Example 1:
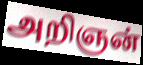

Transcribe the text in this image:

அறிஞன்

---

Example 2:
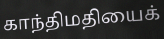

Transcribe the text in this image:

காந்திமதியைக்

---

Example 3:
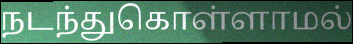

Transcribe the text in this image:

நடந்துகொள்ளாமல்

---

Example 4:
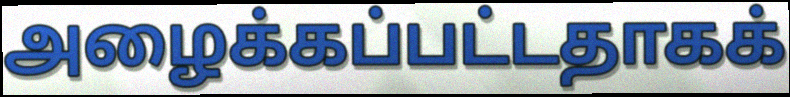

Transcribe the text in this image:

அழைக்கப்பட்டதாகக்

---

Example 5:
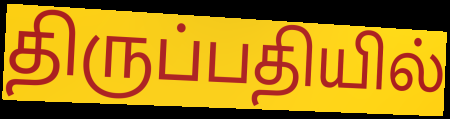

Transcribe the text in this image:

திருப்பதியில்